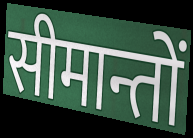
सीमान्तों